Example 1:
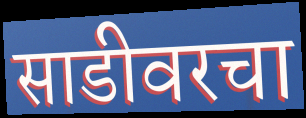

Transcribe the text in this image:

साडीवरचा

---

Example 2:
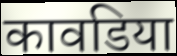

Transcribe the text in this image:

कावडिया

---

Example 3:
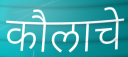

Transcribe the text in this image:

कौलाचे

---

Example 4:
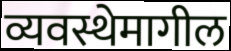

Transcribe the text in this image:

व्यवस्थेमागील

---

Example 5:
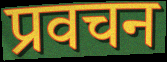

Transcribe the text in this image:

प्रवचन